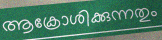
ആക്രോശിക്കുന്നതും